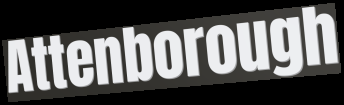
Attenborough